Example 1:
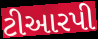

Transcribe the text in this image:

ટીઆરપી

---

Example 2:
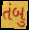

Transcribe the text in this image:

તંબુ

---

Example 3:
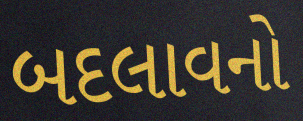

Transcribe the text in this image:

બદલાવનો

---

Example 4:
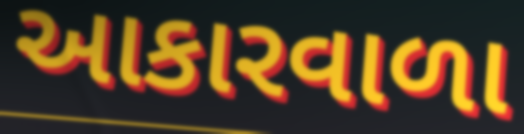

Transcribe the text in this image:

આકારવાળા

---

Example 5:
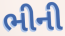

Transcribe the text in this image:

ભીની